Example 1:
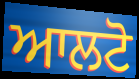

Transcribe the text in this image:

ਆਲਟੋ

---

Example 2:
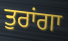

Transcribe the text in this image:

ਤੁਰਾਂਗਾ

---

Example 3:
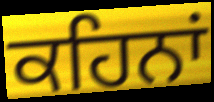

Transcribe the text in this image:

ਕਹਿਨਾਂ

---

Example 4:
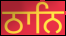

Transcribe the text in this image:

ਠਾਨਿ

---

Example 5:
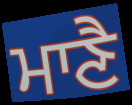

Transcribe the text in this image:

ਮਾਣੈ